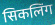
सिकलिंग